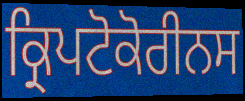
ਕ੍ਰਿਪਟੋਕੋਰੀਨਸ